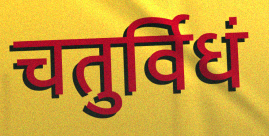
चतुर्विधं